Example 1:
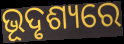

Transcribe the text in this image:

ଭୂଦୃଶ୍ୟରେ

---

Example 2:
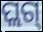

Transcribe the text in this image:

ପ୍ଲଗ୍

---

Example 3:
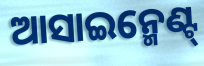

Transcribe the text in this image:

ଆସାଇନ୍ମେଣ୍ଟ୍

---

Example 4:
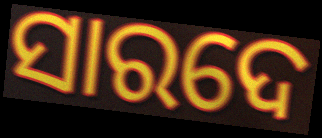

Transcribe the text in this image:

ସାରଦେ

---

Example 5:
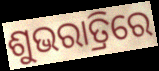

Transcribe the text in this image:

ଶୁଭରାତ୍ରିରେ